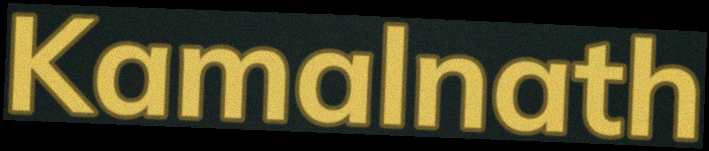
Kamalnath